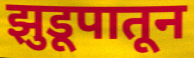
झुडूपातून